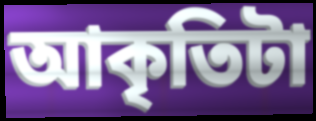
আকৃতিটা